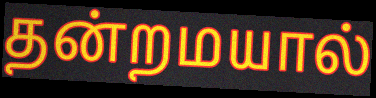
தன்றமயால்